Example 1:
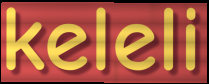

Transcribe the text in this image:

keleli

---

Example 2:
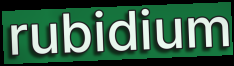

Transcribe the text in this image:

rubidium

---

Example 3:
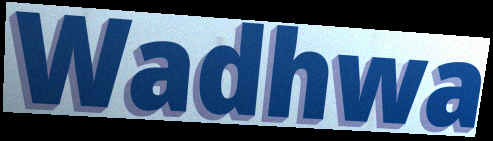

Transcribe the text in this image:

Wadhwa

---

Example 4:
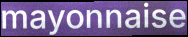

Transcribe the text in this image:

mayonnaise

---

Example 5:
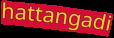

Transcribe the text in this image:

hattangadi